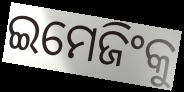
ଇମେଜିଂକୁ